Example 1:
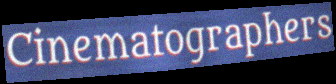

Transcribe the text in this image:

Cinematographers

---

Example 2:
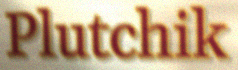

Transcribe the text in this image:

Plutchik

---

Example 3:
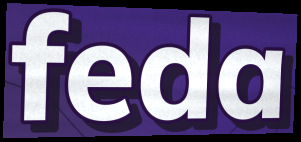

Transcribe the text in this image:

feda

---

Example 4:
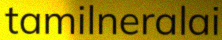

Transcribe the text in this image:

tamilneralai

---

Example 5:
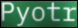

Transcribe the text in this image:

Pyotr